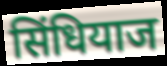
सिंधियाज